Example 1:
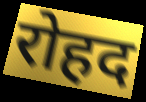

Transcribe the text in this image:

रोहद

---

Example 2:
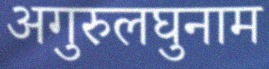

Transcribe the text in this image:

अगुरुलघुनाम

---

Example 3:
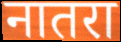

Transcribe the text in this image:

नातरा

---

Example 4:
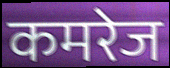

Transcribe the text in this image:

कमरेज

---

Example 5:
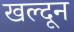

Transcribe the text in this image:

खल्दून